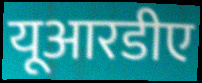
यूआरडीए